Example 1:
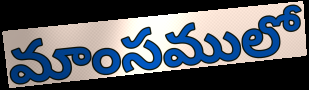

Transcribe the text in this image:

మాంసములో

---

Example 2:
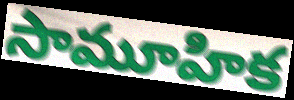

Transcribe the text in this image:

సామూహిక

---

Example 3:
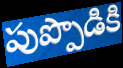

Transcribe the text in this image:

పుప్పొడికి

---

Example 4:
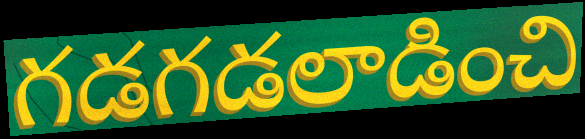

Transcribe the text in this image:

గడగడలాడించి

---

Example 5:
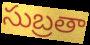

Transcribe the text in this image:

సుబ్రతా